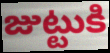
జుట్టుకి